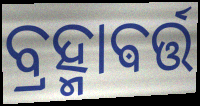
ବ୍ରହ୍ମାଵର୍ତ୍ତ